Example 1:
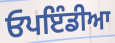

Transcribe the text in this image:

ਓਪਇੰਡੀਆ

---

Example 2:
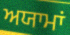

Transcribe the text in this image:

ਅਯਾਮਾਂ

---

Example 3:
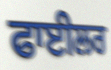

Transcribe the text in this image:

ਫਾਈਲਰ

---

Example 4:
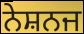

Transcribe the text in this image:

ਨੇਸ਼ਨਜ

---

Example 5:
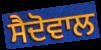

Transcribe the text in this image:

ਸੈਦੋਵਾਲ